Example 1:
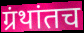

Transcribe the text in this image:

ग्रंथांतच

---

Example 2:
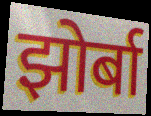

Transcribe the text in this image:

झोर्बा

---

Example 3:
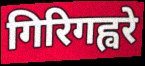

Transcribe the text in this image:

गिरिगह्वरे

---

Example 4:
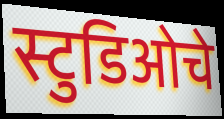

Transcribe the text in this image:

स्टुडिओचे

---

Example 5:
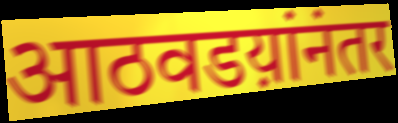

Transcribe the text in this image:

आठवडय़ांनंतर